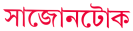
সাজোনটোক